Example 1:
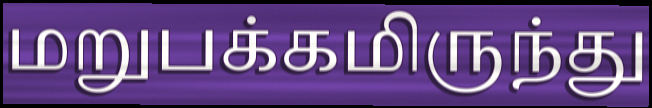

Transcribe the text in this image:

மறுபக்கமிருந்து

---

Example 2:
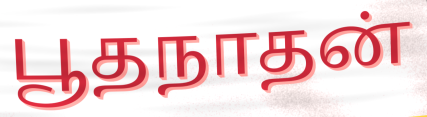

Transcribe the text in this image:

பூதநாதன்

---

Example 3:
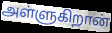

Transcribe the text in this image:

அள்ளுகிறான்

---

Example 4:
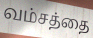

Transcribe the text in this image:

வம்சத்தை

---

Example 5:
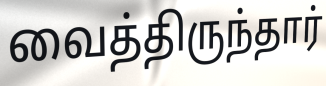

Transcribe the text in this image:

வைத்திருந்தார்